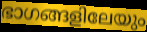
ഭാഗങ്ങളിലേയും